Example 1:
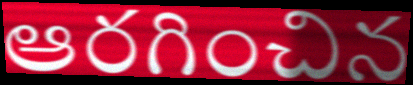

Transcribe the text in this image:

ఆరగించిన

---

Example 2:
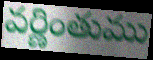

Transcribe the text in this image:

వర్ణింతుము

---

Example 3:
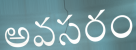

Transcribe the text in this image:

అవసరం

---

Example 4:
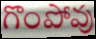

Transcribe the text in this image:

గొంపోవు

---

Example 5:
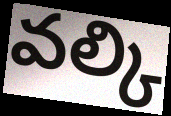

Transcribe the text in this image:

వల్కి